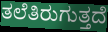
ತಲೆತಿರುಗುತ್ತದೆ